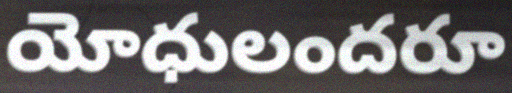
యోధులందరూ